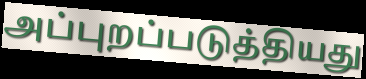
அப்புறப்படுத்தியது